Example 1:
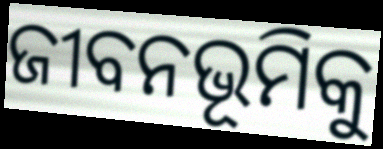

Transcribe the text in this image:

ଜୀବନଭୂମିକୁ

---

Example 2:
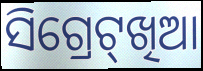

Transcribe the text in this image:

ସିଗ୍ରେଟ୍‌ଖିଆ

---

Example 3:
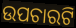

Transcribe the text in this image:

ଉପଚାରଟି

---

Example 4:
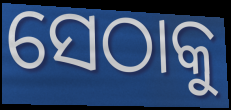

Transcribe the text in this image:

ସେଠାକୁ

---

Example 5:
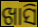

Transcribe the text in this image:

ଖାସି